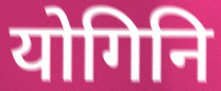
योगिनि